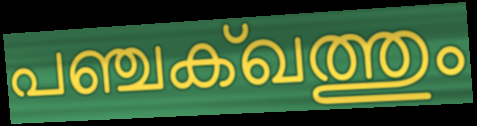
പഞ്ചക്ഖത്തും